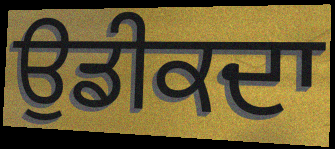
ਉਡੀਕਦਾ